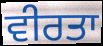
ਵੀਰਤਾ